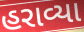
હરાવ્યા